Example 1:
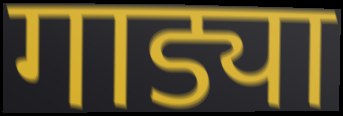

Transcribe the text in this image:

गाड्या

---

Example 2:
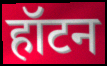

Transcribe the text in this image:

हॉटन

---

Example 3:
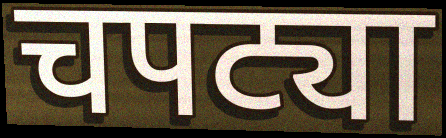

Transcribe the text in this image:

चपट्या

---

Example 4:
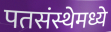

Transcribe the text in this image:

पतसंस्थेमध्ये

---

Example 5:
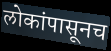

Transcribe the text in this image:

लोकांपासूनच